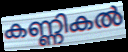
കണ്ണികൽ